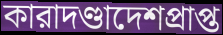
কারাদণ্ডাদেশপ্রাপ্ত